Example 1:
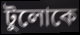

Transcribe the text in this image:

টুলোকে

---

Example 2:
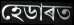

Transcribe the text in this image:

হেডাৰত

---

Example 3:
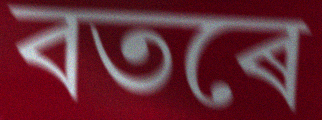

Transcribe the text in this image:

বতৰে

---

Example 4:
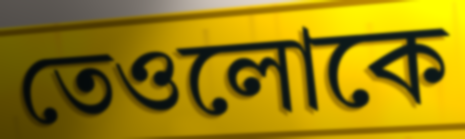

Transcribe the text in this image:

তেওলোকে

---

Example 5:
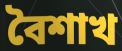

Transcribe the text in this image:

বৈশাখ